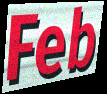
Feb